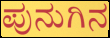
ಪುನುಗಿನ